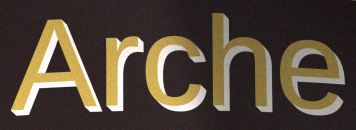
Arche